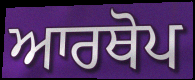
ਆਰਥੋਪ